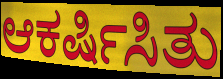
ಆಕರ್ಷಿಸಿತು